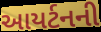
આયર્ટનની